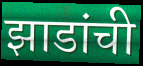
झाडांची